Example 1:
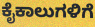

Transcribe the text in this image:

ಕೈಕಾಲುಗಳಿಗೆ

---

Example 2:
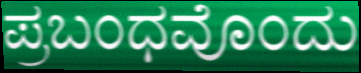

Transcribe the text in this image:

ಪ್ರಬಂಧವೊಂದು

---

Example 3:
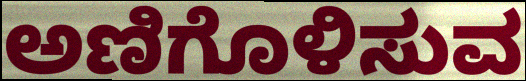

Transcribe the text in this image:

ಅಣಿಗೊಳಿಸುವ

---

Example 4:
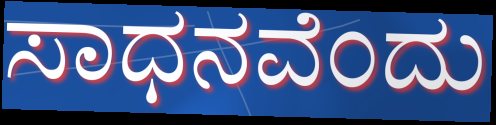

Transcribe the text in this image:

ಸಾಧನವೆಂದು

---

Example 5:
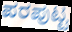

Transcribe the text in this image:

ಪರಪುಟ್ಟ